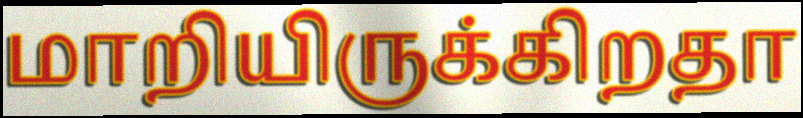
மாறியிருக்கிறதா